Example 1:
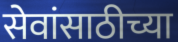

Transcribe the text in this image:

सेवांसाठीच्या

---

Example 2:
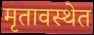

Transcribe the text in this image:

मृतावस्थेत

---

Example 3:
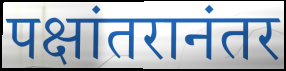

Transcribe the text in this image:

पक्षांतरानंतर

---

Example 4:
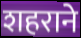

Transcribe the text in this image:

शहराने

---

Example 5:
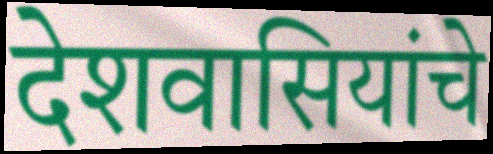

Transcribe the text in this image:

देशवासियांचे